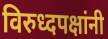
विरुध्दपक्षांनी